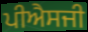
ਪੀਐਸਜੀ